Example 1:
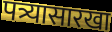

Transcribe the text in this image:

पत्र्यासारखा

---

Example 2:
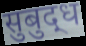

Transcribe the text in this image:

सुबुद्ध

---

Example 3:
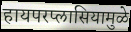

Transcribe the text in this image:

हायपरप्लासियामुळे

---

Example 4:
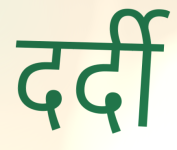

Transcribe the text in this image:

दर्दी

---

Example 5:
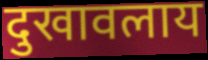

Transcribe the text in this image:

दुखावलाय